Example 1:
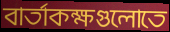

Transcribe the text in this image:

বার্তাকক্ষগুলোতে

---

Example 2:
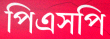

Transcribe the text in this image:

পিএসপি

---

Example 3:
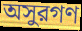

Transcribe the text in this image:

অসুরগণ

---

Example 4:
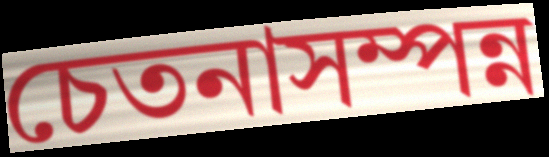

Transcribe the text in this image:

চেতনাসম্পন্ন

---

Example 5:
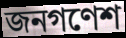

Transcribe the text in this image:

জনগণেশ